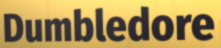
Dumbledore